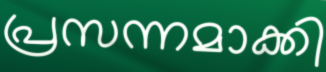
പ്രസന്നമാക്കി